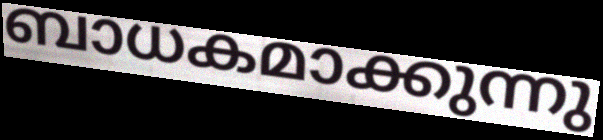
ബാധകമാക്കുന്നു